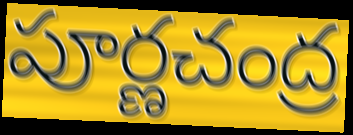
పూర్ణచంద్ర